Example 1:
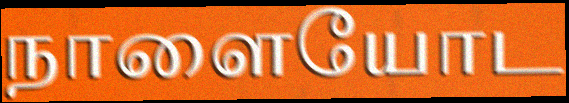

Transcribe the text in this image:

நாளையோட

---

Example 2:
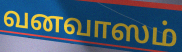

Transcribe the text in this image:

வனவாஸம்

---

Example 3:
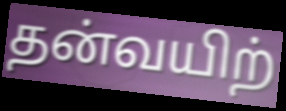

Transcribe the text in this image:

தன்வயிற்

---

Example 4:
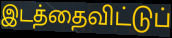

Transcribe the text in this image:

இடத்தைவிட்டுப்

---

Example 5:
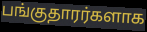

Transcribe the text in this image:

பங்குதாரர்களாக